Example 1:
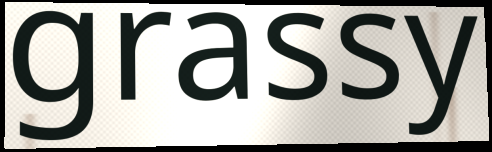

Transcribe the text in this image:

grassy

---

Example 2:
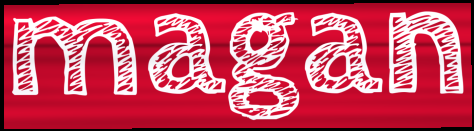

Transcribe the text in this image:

magan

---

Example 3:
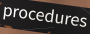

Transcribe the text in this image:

procedures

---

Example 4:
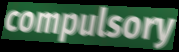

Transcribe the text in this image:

compulsory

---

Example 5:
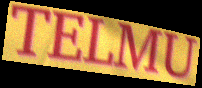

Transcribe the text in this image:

TELMU